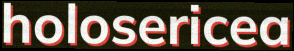
holosericea